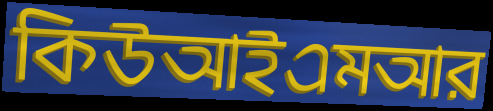
কিউআইএমআর